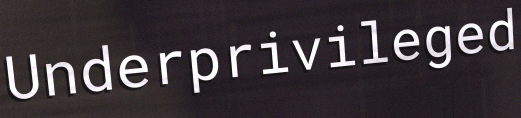
Underprivileged